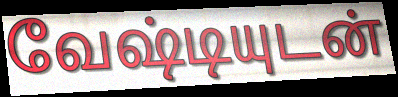
வேஷ்டியுடன்